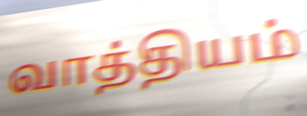
வாத்தியம்